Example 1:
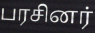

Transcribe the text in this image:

பரசினர்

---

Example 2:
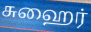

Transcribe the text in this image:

சுஹைர்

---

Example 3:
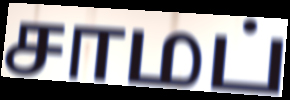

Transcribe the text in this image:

சாமப்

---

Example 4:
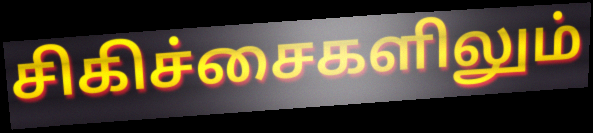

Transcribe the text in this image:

சிகிச்சைகளிலும்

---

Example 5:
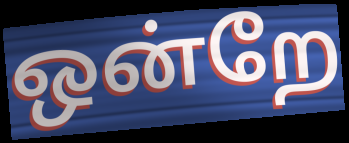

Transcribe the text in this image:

ஒன்றே